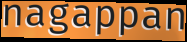
nagappan